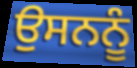
ਉਸਨਨੂੰ